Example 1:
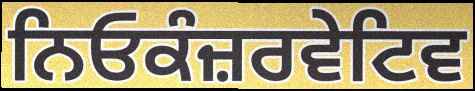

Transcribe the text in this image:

ਨਿਓਕੰਜ਼ਰਵੇਟਿਵ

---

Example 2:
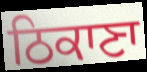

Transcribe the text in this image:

ਠਿਕਾਣਾ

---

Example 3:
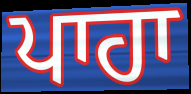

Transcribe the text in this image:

ਪਾਹਾ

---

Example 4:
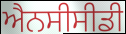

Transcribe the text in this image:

ਐਨਸੀਸੀਡੀ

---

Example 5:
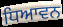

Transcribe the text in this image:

ਧਿਆਵਨ